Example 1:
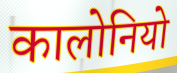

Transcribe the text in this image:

कालोनियो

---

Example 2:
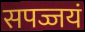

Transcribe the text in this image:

सपज्जयं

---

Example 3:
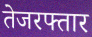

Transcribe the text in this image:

तेजरफ्तार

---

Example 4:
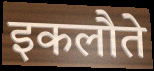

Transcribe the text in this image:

इकलौते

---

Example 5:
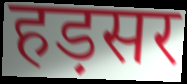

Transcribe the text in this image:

हड़सर